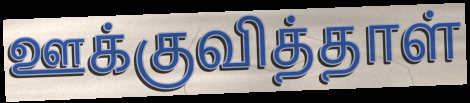
ஊக்குவித்தாள்